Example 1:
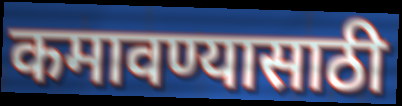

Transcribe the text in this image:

कमावण्यासाठी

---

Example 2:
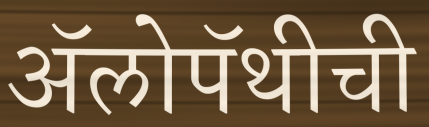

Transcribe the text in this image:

ॲलोपॅथीची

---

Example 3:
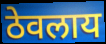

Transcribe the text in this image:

ठेवलाय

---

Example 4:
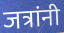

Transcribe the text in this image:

जत्रांनी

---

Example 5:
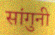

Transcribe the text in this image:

सांगुनी